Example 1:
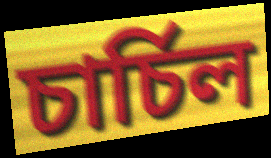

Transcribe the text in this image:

চাৰ্চিল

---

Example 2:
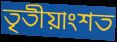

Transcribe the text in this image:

তৃতীয়াংশত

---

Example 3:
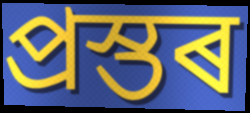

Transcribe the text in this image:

প্ৰস্তৰ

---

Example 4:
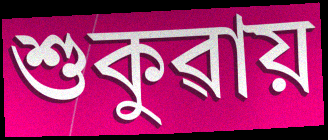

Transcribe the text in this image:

শুকুৱায়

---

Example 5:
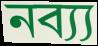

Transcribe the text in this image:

নব্য্য